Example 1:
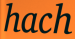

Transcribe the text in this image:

hach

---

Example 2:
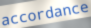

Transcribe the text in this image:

accordance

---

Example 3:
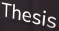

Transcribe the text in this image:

Thesis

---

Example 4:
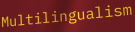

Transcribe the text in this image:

Multilingualism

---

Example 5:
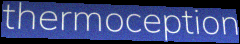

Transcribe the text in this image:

thermoception